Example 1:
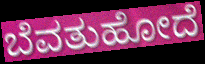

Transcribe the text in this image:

ಬೆವತುಹೋದೆ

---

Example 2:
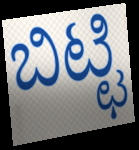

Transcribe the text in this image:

ಬಿಟ್ಟಿ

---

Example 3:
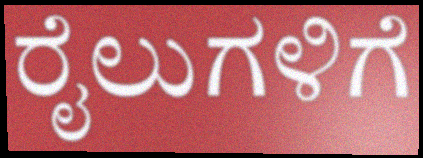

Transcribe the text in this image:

ರೈಲುಗಳಿಗೆ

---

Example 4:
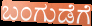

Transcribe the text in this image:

ಬಂಗುಡೆಗೆ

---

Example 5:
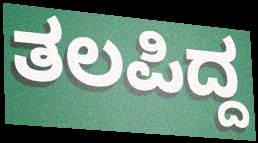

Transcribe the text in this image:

ತಲಪಿದ್ದ